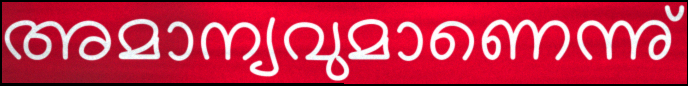
അമാന്യവുമാണെന്നു്